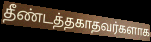
தீண்டத்தகாதவர்களாக